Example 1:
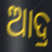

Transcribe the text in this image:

ଆଦ୍ର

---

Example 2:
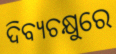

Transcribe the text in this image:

ଦିବ୍ୟଚକ୍ଷୁରେ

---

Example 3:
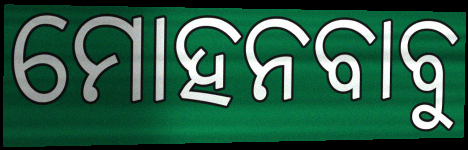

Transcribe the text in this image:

ମୋହନବାବୁ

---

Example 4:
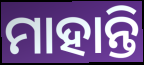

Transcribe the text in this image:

ମାହାନ୍ତି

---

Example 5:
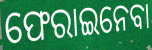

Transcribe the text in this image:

ଫେରାଇନେବା